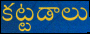
కట్టడాలు